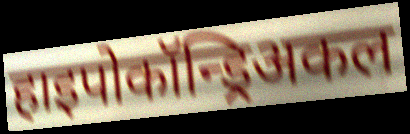
हाइपोकॉन्ड्रिअकल